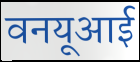
वनयूआई